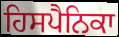
ਹਿਸਪੈਨਿਕਾ